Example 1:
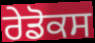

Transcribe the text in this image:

ਰੇਡੋਕਸ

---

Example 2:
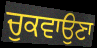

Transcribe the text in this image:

ਚੁਕਵਾਉਣਾ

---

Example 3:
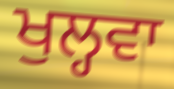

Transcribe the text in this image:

ਖੁਲ੍ਹਵਾ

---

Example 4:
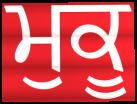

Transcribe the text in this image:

ਮੁਕੂ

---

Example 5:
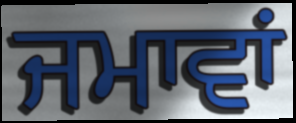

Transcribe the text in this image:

ਜਮਾਵਾਂ